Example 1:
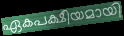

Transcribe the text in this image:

ഏകപക്ഷീയമായി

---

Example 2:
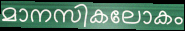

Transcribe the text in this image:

മാനസികലോകം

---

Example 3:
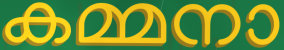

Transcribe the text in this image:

കമ്മനാ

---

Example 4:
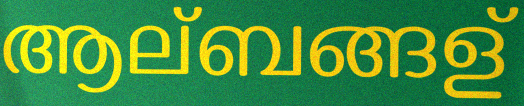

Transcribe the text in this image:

ആല്ബങ്ങള്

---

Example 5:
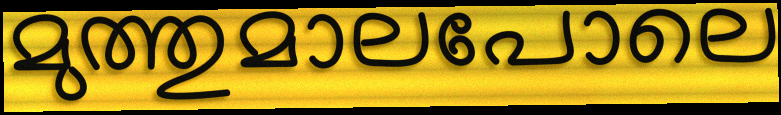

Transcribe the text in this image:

മുത്തുമാലപോലെ